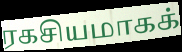
ரகசியமாகக்